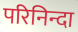
परिनिन्दा